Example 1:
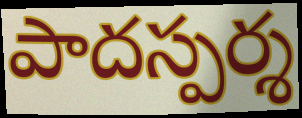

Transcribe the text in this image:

పాదస్పర్శ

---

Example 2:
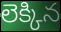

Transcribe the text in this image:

లెక్కిన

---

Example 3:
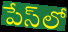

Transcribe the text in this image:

పేస్‌లో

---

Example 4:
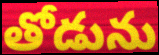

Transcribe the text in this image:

తోడును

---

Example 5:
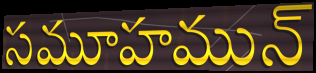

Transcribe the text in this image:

సమూహమున్